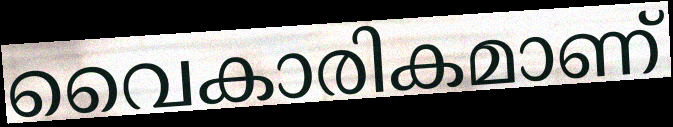
വൈകാരികമാണ്